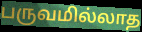
பருவமில்லாத